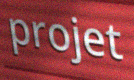
projet